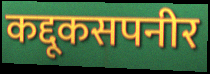
कद्दूकसपनीर